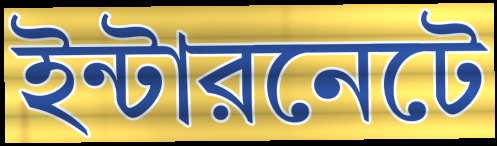
ইন্টারনেটে